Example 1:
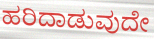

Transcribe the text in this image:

ಹರಿದಾಡುವುದೇ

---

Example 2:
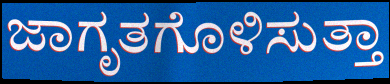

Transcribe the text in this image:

ಜಾಗೃತಗೊಳಿಸುತ್ತಾ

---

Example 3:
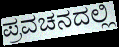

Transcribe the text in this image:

ಪ್ರವಚನದಲ್ಲಿ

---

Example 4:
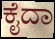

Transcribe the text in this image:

ಕೈದಾ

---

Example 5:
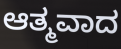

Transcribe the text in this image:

ಆತ್ಮವಾದ